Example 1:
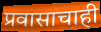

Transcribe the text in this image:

प्रवासाचाही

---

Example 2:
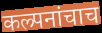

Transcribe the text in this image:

कल्पनांचाच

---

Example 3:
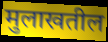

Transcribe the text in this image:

मुलाखतील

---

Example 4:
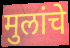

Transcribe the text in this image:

मुलांचे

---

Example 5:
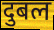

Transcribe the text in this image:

दुबल